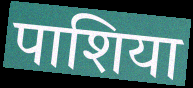
पाशिया